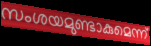
സംശയമുണ്ടാകുമെന്ന്